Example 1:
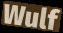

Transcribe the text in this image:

Wulf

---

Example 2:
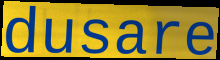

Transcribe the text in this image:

dusare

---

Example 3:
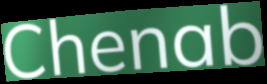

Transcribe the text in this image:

Chenab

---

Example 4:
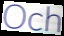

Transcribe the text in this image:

Och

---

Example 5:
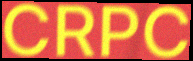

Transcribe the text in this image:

CRPC